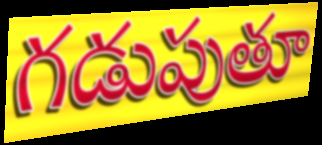
గడుపుతూ